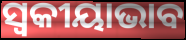
ସ୍ୱକୀୟାଭାବ